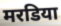
मरडिया